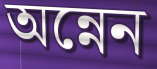
অন্নেন